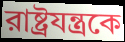
রাষ্ট্রযন্ত্রকে